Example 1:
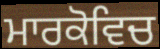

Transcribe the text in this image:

ਮਾਰਕੋਵਿਚ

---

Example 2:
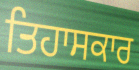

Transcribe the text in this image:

ਤਿਹਾਸਕਾਰ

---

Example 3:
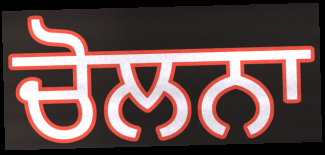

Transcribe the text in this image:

ਚੋਲਨਾ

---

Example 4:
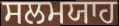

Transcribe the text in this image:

ਸਲਮਯਾਹ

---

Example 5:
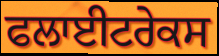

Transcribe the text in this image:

ਫਲਾਈਟਰੇਕਸ